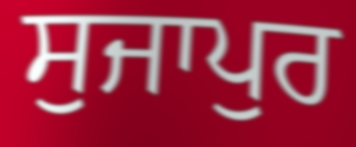
ਸੁਜਾਪੁਰ